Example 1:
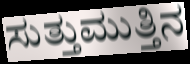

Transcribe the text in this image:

ಸುತ್ತುಮುತ್ತಿನ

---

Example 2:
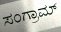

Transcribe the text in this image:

ಸಂಗ್ರಾಮ್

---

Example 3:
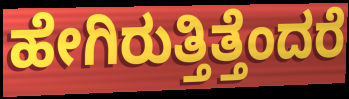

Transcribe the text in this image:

ಹೇಗಿರುತ್ತಿತ್ತೆಂದರೆ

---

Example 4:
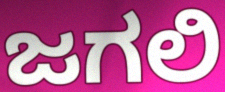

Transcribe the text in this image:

ಜಗಲಿ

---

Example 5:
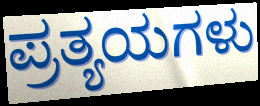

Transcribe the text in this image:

ಪ್ರತ್ಯಯಗಳು